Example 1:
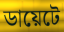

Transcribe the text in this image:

ডায়েটে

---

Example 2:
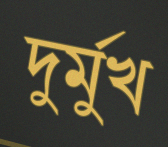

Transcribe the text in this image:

দুর্মুখ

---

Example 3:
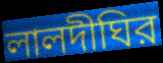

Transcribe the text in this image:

লালদীঘির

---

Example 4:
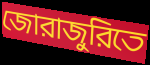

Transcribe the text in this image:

জোরাজুরিতে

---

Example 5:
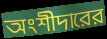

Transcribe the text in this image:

অংশীদারের